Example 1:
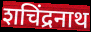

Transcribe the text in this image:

शचिंद्रनाथ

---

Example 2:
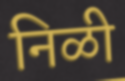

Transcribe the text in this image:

निळी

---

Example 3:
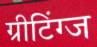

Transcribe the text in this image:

ग्रीटिंग्ज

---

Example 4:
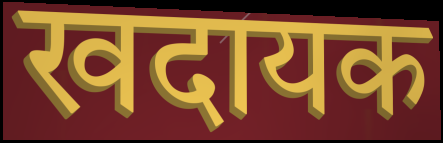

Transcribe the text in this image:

खदायक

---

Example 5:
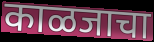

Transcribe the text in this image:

काळजाचा